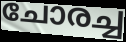
ചോരച്ച